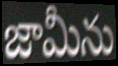
జామీను